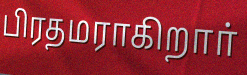
பிரதமராகிறார்